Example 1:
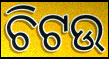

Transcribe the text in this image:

ଚିଟଉ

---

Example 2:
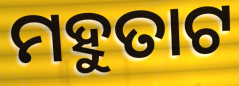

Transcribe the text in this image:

ମହୁତାଟ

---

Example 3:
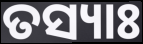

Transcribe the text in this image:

ତସ୍ୟାଃ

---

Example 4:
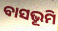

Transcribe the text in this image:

ବାସଭୂମି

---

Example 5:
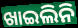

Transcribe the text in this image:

ଖାଇଲିନି